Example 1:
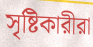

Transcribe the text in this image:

সৃষ্টিকারীরা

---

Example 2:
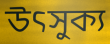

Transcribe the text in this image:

উৎসুক্য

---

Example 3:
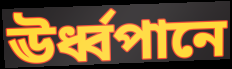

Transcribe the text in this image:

ঊর্ধ্বপানে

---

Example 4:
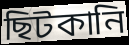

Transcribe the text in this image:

ছিটকানি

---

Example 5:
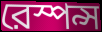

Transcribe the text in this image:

রেস্পন্স